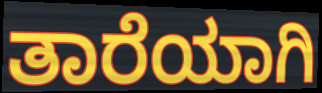
ತಾರೆಯಾಗಿ